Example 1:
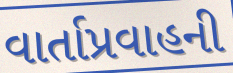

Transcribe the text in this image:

વાર્તાપ્રવાહની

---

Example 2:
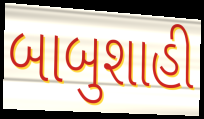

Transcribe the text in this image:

બાબુશાહી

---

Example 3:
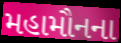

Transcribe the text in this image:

મહામૌનના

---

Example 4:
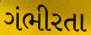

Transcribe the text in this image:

ગંભીરતા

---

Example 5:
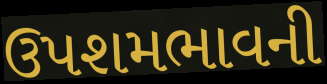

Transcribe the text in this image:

ઉપશમભાવની